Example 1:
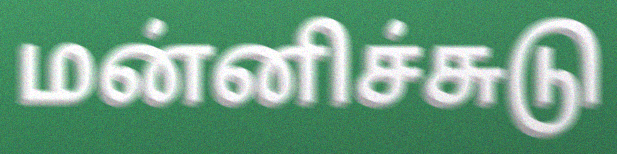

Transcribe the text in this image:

மன்னிச்சுடு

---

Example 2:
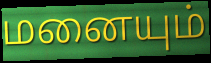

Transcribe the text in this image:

மனையும்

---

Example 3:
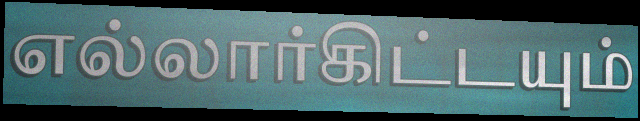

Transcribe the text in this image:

எல்லார்கிட்டயும்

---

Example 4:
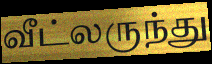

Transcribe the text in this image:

வீட்லருந்து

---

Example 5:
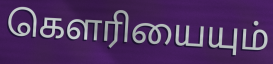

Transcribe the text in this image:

கௌரியையும்